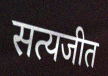
सत्यजीत